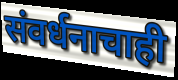
संवर्धनाचाही